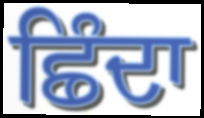
ਛਿੰਦਾ